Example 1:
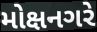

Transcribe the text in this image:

મોક્ષનગરે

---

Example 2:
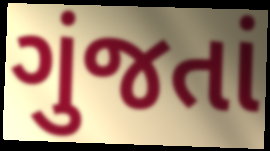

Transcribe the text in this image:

ગુંજતાં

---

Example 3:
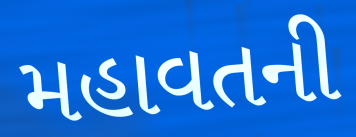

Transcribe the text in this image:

મહાવતની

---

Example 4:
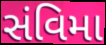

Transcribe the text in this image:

સંવિમા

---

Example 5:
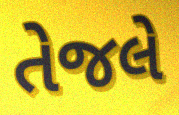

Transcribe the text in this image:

તેજલે